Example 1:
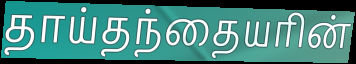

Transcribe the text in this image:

தாய்தந்தையரின்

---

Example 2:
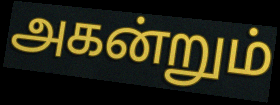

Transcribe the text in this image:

அகன்றும்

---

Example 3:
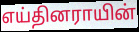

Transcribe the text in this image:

எய்தினராயின்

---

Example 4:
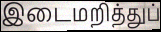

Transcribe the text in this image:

இடைமறித்துப்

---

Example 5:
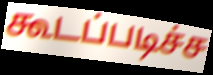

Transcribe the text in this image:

கூடப்படிச்ச